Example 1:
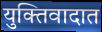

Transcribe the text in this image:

युक्तिवादात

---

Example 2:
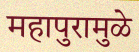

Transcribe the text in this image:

महापुरामुळे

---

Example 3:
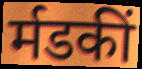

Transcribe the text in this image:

र्मडकीं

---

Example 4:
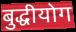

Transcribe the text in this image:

बुद्धीयोग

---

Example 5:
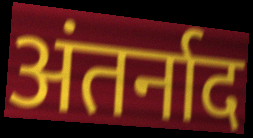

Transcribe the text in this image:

अंतर्नाद